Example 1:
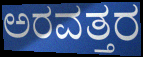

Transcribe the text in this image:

ಅರವತ್ತರ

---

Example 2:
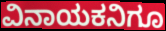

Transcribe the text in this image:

ವಿನಾಯಕನಿಗೂ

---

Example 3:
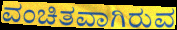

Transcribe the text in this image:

ವಂಚಿತವಾಗಿರುವ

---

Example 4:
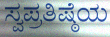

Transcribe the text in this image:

ಸ್ವಪ್ರತಿಷ್ಠೆಯ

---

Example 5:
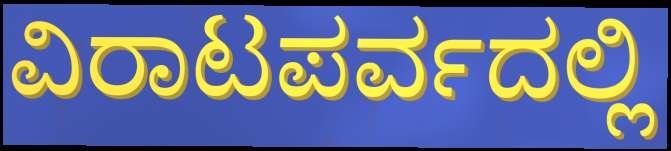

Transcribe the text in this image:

ವಿರಾಟಪರ್ವದಲ್ಲಿ